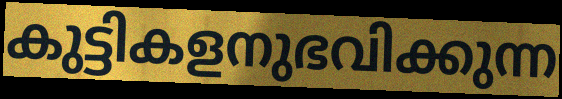
കുട്ടികളനുഭവിക്കുന്ന